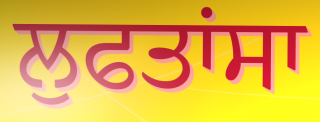
ਲੁਫਤਾਂਸਾ